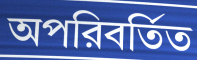
অপরিবর্তিত